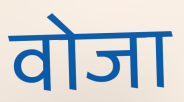
वोजा